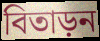
বিতাড়ন